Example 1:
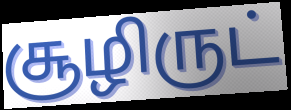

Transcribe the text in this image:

சூழிருட்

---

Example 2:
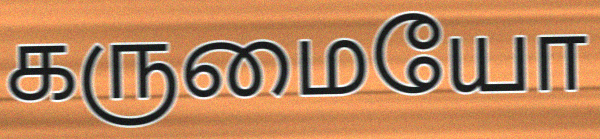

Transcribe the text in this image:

கருமையோ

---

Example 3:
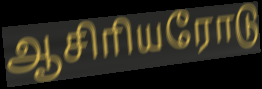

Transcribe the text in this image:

ஆசிரியரோடு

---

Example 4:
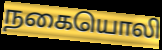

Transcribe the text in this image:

நகையொலி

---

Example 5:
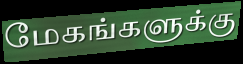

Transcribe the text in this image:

மேகங்களுக்கு